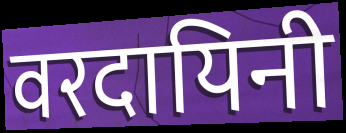
वरदायिनी